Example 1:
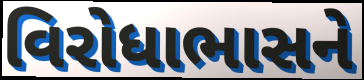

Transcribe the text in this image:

વિરોધાભાસને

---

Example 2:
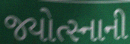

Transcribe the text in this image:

જ્યોત્સ્નાની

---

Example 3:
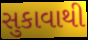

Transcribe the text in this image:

સુકાવાથી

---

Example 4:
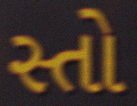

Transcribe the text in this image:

સ્તો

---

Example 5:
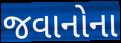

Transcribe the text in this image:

જવાનોના